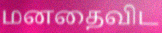
மனதைவிட